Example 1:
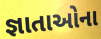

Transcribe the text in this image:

જ્ઞાતાઓના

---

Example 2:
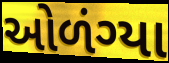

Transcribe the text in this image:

ઓળંગ્યા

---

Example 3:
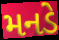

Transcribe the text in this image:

મનડે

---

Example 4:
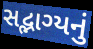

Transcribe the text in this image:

સદ્ભાગ્યનું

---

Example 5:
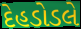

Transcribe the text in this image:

દેહડોડલે